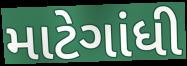
માટેગાંધી